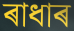
ৰাধাৰ